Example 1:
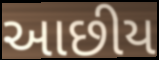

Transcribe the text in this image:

આછીય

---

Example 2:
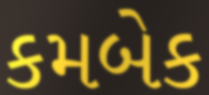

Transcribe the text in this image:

કમબેક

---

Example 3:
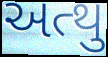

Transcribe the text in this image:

અત્થુ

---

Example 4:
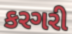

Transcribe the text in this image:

કરગરી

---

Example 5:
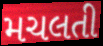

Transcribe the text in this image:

મચલતી